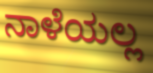
ನಾಳೆಯಲ್ಲ